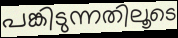
പങ്കിടുന്നതിലൂടെ